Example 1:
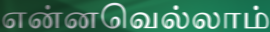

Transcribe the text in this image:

என்னவெல்லாம்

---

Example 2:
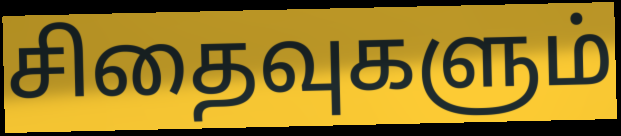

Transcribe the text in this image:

சிதைவுகளும்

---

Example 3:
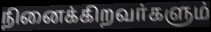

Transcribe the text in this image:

நினைக்கிறவர்களும்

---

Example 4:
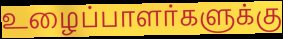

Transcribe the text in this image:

உழைப்பாளர்களுக்கு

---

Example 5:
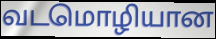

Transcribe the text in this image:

வடமொழியான